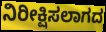
ನಿರೀಕ್ಷಿಸಲಾಗದ